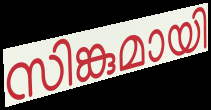
സിങ്കുമായി